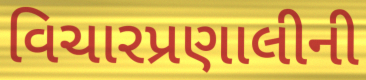
વિચારપ્રણાલીની